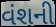
વંશની